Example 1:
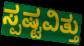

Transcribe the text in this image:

ಸ್ಪಷ್ಟವಿತ್ತು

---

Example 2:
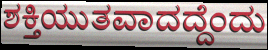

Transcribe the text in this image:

ಶಕ್ತಿಯುತವಾದದ್ದೆಂದು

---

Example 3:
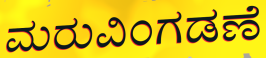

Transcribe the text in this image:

ಮರುವಿಂಗಡಣೆ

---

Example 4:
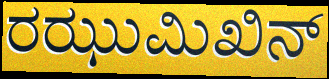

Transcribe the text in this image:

ರಝುಮಿಖಿನ್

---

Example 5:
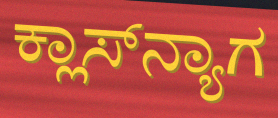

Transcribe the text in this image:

ಕ್ಲಾಸ್‌ನ್ಯಾಗ